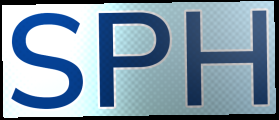
SPH